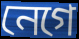
নেগে